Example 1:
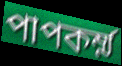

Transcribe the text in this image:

পাপকর্ম্ম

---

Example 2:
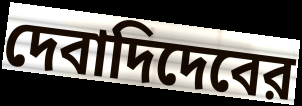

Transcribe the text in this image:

দেবাদিদেবের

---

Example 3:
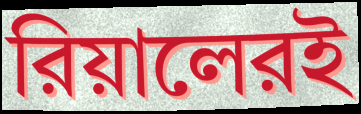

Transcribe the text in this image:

রিয়ালেরই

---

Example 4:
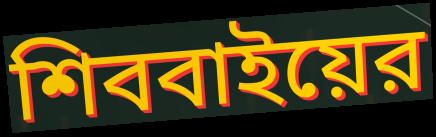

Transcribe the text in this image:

শিববাইয়ের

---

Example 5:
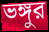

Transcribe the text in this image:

ভঙ্গুর